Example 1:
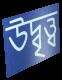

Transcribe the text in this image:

উদ্বৃত্ত্ব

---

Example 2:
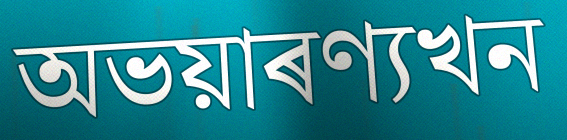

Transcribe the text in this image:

অভয়াৰণ্যখন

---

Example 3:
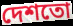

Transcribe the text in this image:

দেশতো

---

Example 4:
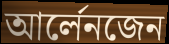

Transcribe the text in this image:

আৰ্লেনজেন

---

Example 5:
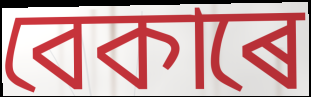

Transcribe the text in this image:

বেকাৰে